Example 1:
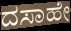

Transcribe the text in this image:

ದಸಾಹೇ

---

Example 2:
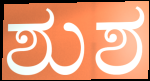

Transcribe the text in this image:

ಶುಶ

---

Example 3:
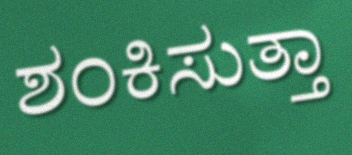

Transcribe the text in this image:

ಶಂಕಿಸುತ್ತಾ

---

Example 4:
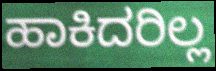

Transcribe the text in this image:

ಹಾಕಿದರಿಲ್ಲ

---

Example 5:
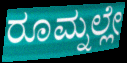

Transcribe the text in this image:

ರೂಮ್ನಲ್ಲೇ